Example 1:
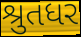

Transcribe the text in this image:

શ્રુતધર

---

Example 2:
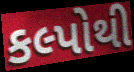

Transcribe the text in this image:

કલ્પોથી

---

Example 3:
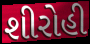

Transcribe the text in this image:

શીરોહી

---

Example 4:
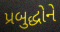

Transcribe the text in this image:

પ્રબુદ્ધોને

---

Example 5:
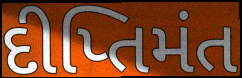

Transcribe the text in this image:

દીપ્તિમંત